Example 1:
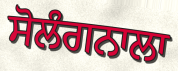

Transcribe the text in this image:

ਸੋਲੰਗਨਾਲਾ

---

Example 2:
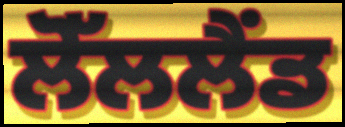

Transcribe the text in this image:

ਲੋੱਲਲੈਂਡ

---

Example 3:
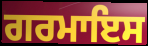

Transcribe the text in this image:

ਗਰਮਾਇਸ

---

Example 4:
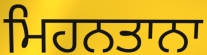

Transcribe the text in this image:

ਮਿਹਨਤਾਨਾ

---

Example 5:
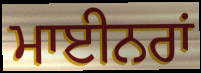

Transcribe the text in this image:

ਮਾਈਨਰਾਂ